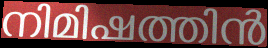
നിമിഷത്തിൻ